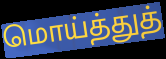
மொய்த்துத்